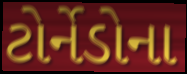
ટોર્નેડોના